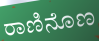
ರಾಣಿನೊಣ